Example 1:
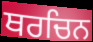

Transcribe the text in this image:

ਥਰਚਿਨ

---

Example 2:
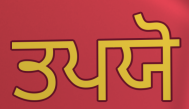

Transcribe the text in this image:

ਤਪਯੋ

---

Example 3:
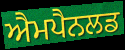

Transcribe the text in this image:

ਐਮਪੈਨਲਡ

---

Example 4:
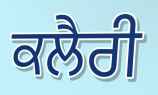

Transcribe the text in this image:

ਕਲੈਰੀ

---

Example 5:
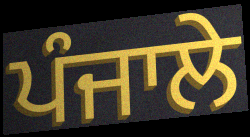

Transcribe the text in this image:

ਪੰਜਾਲੇ